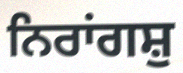
ਨਿਰਾਂਗਸ਼ੁ